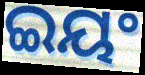
ଇୟଂ